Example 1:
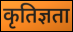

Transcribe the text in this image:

कृतिज्ञता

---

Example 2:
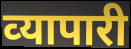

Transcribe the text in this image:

व्‍यापारी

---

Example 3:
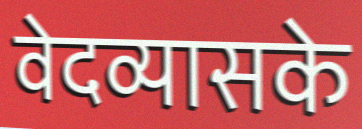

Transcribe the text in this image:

वेदव्यासके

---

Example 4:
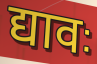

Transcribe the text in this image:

द्यावः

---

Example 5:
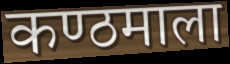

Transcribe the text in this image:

कण्ठमाला